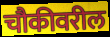
चौकीवरील